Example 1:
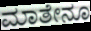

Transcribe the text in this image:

ಮಾತೇನೂ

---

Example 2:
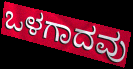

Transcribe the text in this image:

ಒಳಗಾದವು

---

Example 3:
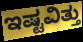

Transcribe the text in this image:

ಇಷ್ಟವಿತ್ತು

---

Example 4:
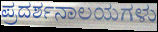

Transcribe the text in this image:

ಪ್ರದರ್ಶನಾಲಯಗಳು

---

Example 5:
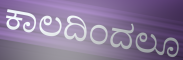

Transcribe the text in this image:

ಕಾಲದಿಂದಲೂ